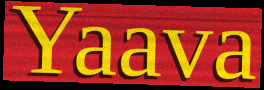
Yaava